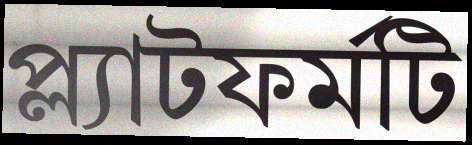
প্ল্যাটফর্মটি